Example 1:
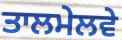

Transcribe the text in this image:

ਤਾਲਮੇਲਵੇ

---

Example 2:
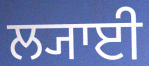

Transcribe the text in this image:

ਲ੍ਯਾਈ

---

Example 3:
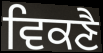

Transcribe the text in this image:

ਵਿਕਣੈ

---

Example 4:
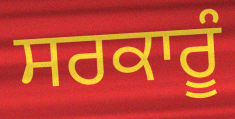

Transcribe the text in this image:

ਸਰਕਾਰੂੰ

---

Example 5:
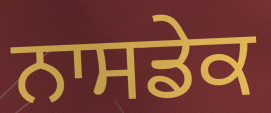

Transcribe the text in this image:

ਨਾਸਡੇਕ